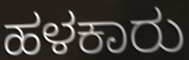
ಹಳಕಾರು